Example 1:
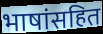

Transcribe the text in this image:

भाषांसहित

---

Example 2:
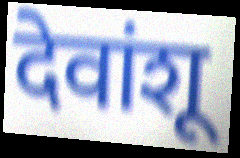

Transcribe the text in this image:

देवांशू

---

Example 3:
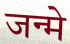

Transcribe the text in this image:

जन्मे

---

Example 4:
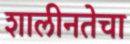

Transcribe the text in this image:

शालीनतेचा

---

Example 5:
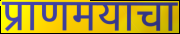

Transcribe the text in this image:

प्राणमयाचा